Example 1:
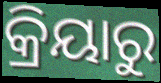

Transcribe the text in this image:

କ୍ରିୟାରୁ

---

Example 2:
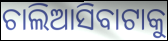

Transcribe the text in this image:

ଚାଲିଆସିବାଟାକୁ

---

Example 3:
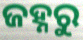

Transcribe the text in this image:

ଜହ୍ନରୁ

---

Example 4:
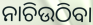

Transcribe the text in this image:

ନାଚିଉଠିବା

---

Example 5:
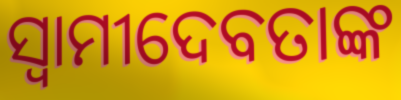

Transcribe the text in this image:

ସ୍ୱାମୀଦେବତାଙ୍କ